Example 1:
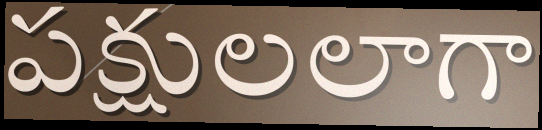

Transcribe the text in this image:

పక్షులలాగా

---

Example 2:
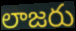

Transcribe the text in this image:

లాజరు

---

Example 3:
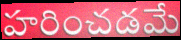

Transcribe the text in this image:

హరించడమే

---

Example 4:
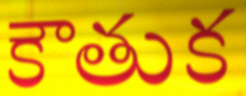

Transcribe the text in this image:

కౌతుక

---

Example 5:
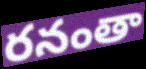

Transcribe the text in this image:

రనంతా